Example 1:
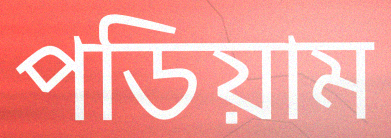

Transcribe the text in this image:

পডিয়াম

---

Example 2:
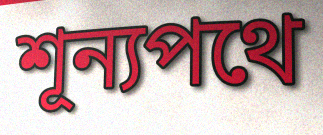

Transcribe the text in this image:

শূন্যপথে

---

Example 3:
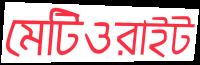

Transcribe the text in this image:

মেটিওরাইট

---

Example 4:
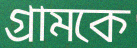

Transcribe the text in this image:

গ্রামকে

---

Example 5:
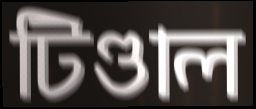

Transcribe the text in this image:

টিণ্ডাল